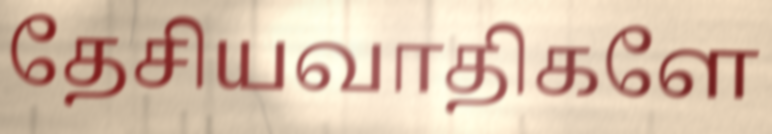
தேசியவாதிகளே